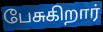
பேசுகிறார்